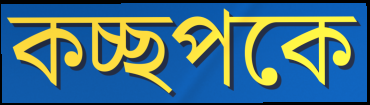
কচ্ছপকে